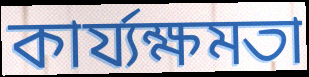
কাৰ্য্যক্ষমতা